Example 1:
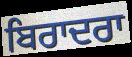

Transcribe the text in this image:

ਬਿਰਾਦਰਾ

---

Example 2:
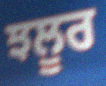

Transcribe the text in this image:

ਝਲੂਰ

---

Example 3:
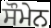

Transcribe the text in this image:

ਸੌਮੇਨ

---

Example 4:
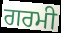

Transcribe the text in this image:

ਗਰਮੀ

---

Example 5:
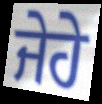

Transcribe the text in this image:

ਜੇਹੇ